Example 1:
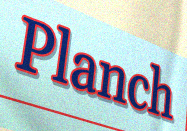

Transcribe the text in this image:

Planch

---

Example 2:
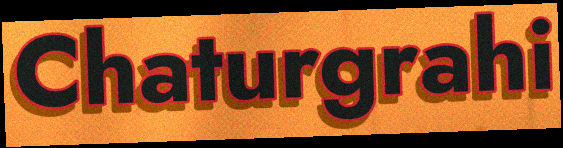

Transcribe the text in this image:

Chaturgrahi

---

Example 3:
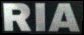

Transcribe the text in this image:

RIA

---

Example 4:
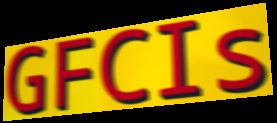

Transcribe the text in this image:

GFCIs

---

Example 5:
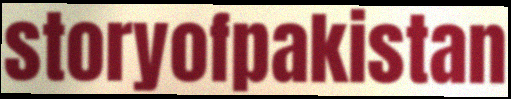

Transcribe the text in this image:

storyofpakistan